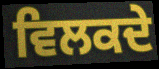
ਵਿਲਕਦੇ